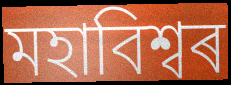
মহাবিশ্বৰ